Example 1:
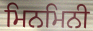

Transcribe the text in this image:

ਮਿਨਮਿਨੀ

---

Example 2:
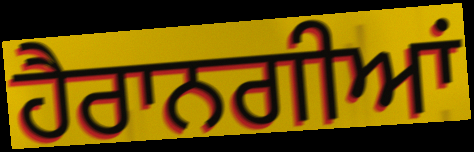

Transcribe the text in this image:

ਹੈਰਾਨਗੀਆਂ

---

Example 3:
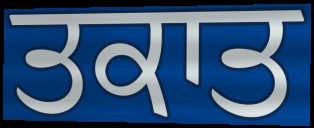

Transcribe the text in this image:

ਤਕਾਤ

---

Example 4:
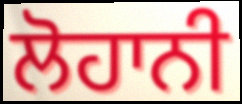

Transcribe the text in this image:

ਲੋਹਾਨੀ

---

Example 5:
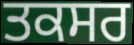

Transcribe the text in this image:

ਤਕਸਰ